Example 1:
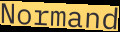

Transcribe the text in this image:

Normand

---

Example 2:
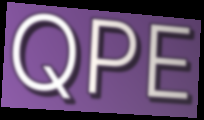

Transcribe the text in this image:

QPE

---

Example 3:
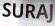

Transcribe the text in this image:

SURAJ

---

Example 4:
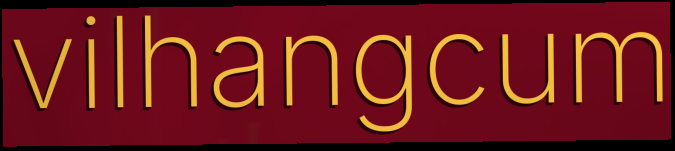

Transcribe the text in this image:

vilhangcum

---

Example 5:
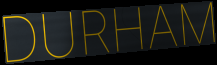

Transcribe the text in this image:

DURHAM